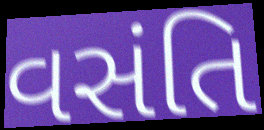
વસંતિ